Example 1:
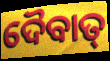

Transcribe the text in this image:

ଦୈବାତ୍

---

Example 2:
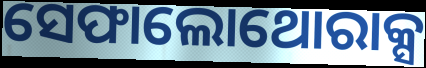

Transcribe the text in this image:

ସେଫାଲୋଥୋରାକ୍ସ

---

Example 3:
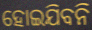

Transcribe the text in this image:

ହୋଇଯିବନି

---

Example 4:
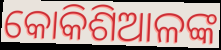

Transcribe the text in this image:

କୋକିଶିଆଳଙ୍କ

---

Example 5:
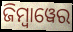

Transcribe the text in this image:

ଜିମ୍ୱାୱେର